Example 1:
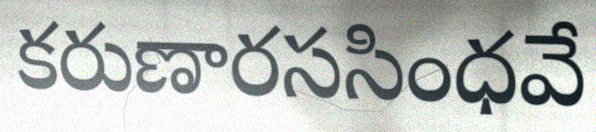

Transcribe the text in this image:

కరుణారససింధవే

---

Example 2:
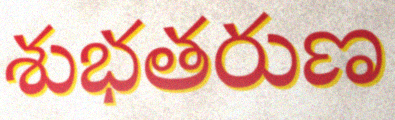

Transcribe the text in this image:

శుభతరుణ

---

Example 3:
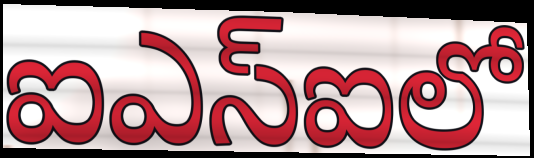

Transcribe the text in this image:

ఐఎస్ఐలో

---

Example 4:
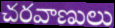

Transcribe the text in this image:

చరవాణులు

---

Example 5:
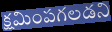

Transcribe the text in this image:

క్షమింపగలడని